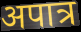
अपात्र